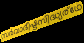
സർവാഭീഷ്ടസിദ്ധ്യര്ഥേ